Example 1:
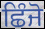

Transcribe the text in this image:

ਛਿੰਜੋ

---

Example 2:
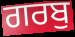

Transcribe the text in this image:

ਗਰਬੁ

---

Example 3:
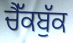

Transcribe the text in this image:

ਚੈੱਕਬੁੱਕ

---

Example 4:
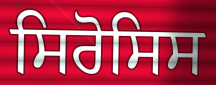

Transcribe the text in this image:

ਸਿਰੋਸਿਸ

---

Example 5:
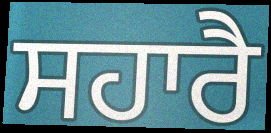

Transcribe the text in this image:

ਸਹਾਰੈ